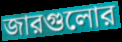
জারগুলোর